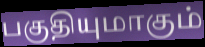
பகுதியுமாகும்